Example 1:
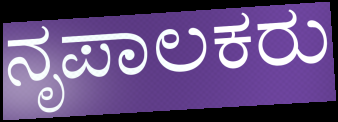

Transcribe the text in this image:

ನೃಪಾಲಕರು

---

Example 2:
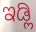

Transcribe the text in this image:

ಇಡ್ಲಿ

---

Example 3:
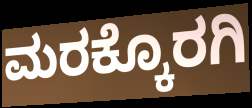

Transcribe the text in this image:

ಮರಕ್ಕೊರಗಿ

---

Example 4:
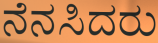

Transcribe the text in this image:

ನೆನಸಿದರು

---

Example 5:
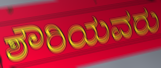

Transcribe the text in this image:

ಶೌರಿಯವರು